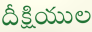
దీక్షియుల